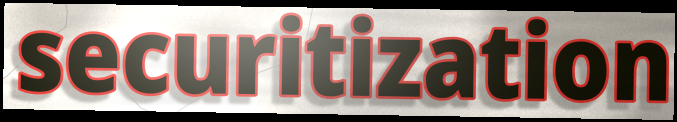
securitization